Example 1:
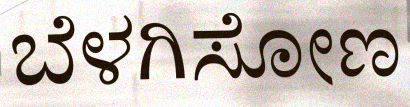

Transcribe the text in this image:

ಬೆಳಗಿಸೋಣ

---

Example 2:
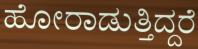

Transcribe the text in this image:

ಹೋರಾಡುತ್ತಿದ್ದರೆ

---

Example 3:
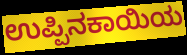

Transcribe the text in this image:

ಉಪ್ಪಿನಕಾಯಿಯ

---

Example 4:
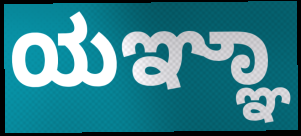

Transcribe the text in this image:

ಯಞ್ಞಾ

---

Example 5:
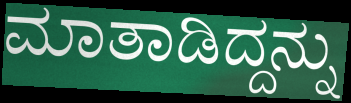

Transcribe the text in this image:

ಮಾತಾಡಿದ್ದನ್ನು